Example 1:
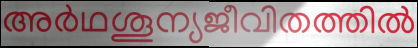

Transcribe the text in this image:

അർഥശൂന്യജീവിതത്തിൽ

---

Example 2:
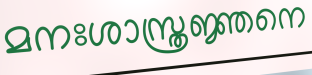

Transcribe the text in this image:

മനഃശാസ്ത്രജ്ഞനെ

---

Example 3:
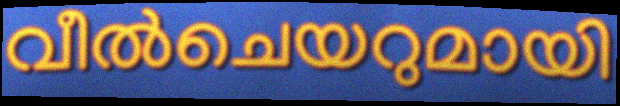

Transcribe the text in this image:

വീൽചെയറുമായി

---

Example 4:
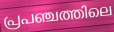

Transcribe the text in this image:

പ്രപഞ്ചത്തിലെ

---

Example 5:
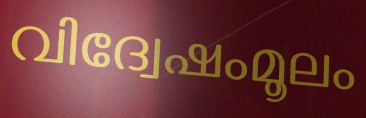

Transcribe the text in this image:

വിദ്വേഷംമൂലം